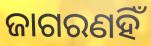
ଜାଗରଣହିଁ